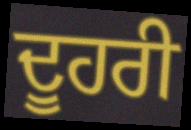
ਦੂਹਰੀ